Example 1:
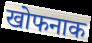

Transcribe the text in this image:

खोफनाक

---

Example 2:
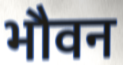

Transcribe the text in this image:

भौवन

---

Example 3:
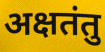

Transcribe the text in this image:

अक्षतंतु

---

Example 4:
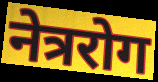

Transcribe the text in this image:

नेत्ररोग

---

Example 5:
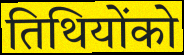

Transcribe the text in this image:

तिथियोंको